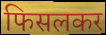
फिसलकर